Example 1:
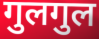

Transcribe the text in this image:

गुलगुल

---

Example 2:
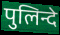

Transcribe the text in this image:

पुलिन्दे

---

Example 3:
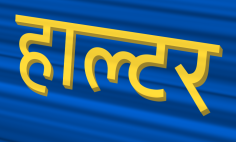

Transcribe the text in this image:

हाल्टर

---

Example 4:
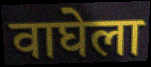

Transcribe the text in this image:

वाघेला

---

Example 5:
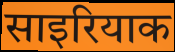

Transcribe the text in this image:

साइरियाक